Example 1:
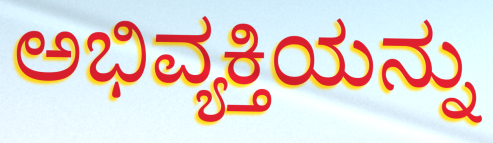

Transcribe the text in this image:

ಅಭಿವ್ಯಕ್ತಿಯನ್ನು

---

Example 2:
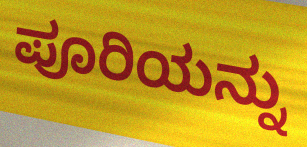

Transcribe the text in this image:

ಪೂರಿಯನ್ನು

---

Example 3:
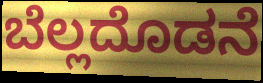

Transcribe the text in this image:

ಬೆಲ್ಲದೊಡನೆ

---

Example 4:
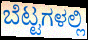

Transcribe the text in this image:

ಬೆಟ್ಟಗಳಲ್ಲಿ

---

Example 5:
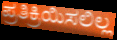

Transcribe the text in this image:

ಪ್ರತಿಕ್ರಿಯಿಸಲಿಲ್ಲ